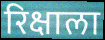
रिक्षाला